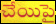
చేయిపై